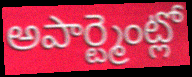
అపార్ట్మెంట్లో